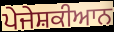
ਪੇਜੇਸ਼ਕੀਆਨ